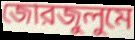
জোরজুলুমে